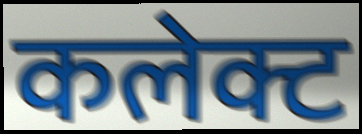
कलेक्ट